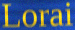
Lorai